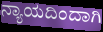
ನ್ಯಾಯದಿಂದಾಗಿ